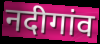
नदीगांव